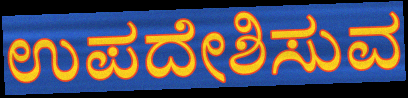
ಉಪದೇಶಿಸುವ